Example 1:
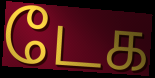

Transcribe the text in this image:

டேக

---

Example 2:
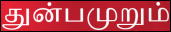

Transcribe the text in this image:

துன்பமுறும்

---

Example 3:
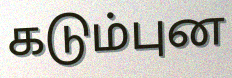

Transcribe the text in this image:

கடும்புன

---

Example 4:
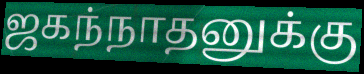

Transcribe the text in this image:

ஜகந்நாதனுக்கு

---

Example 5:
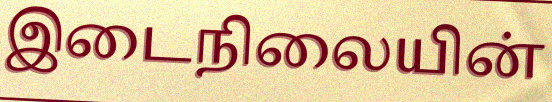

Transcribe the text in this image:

இடைநிலையின்